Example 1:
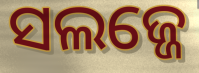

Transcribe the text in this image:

ସଲଜ୍ଜେ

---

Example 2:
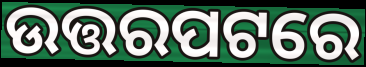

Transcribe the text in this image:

ଉତ୍ତରପଟରେ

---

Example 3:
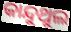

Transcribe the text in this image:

କାନ୍ଦୁଥୁଲ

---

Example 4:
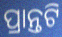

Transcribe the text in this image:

ପ୍ରାନ୍ତଟି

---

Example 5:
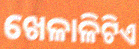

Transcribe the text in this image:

ଖେଳାଳିଟିଏ